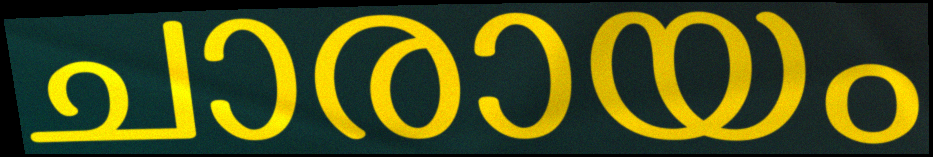
ചാരായം